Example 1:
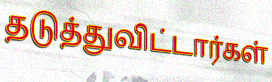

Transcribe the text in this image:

தடுத்துவிட்டார்கள்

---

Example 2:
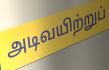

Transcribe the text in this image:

அடிவயிற்றுப்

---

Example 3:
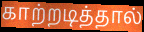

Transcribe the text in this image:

காற்றடித்தால்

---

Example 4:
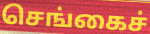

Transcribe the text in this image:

செங்கைச்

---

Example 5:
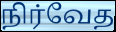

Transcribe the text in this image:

நிர்வேத